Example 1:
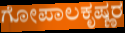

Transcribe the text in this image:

ಗೋಪಾಲಕೃಷ್ಣರ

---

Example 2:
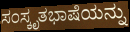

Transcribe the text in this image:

ಸಂಸ್ಕೃತಭಾಷೆಯನ್ನು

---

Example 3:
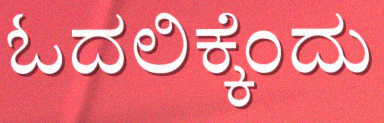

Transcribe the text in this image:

ಓದಲಿಕ್ಕೆಂದು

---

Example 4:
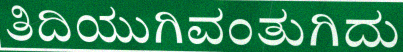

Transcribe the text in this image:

ತಿದಿಯುಗಿವಂತುಗಿದು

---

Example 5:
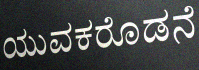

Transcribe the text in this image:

ಯುವಕರೊಡನೆ